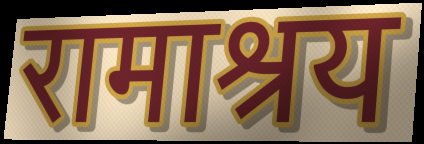
रामाश्रय